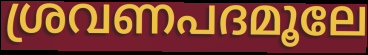
ശ്രവണപദമൂലേ